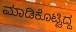
ಮಾಡಿಕೊಟ್ಟಿದ್ದ